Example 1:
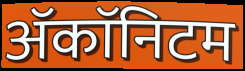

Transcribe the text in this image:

ॲकॉनिटम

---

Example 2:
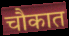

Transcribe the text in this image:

चौकात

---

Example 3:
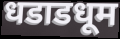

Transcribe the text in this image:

धडाडधूम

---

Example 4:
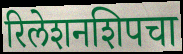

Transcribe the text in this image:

रिलेशनशिपचा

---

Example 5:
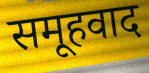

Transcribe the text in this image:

समूहवाद